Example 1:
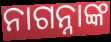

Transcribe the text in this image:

ନାଗନ୍ନାଙ୍କ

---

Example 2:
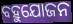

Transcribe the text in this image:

ବହୁଯୋଜନ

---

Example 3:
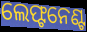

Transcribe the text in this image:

ଲେଫ୍ଟନେଣ୍ଟ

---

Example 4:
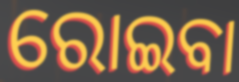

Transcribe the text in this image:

ରୋଇବା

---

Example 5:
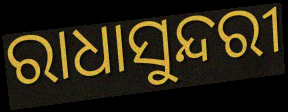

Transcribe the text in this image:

ରାଧାସୁନ୍ଦରୀ